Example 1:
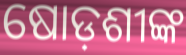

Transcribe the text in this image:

ଷୋଡ଼ଶୀଙ୍କ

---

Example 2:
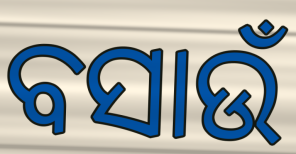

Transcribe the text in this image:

ବସାଉଁ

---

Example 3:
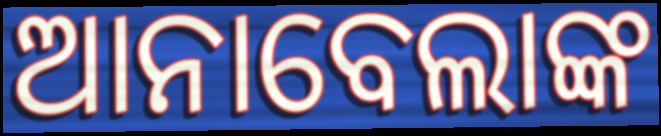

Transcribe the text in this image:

ଆନାବେଲାଙ୍କ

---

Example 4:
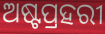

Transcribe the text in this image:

ଅଷ୍ଟପ୍ରହରୀ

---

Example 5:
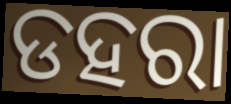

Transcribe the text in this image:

ଡହରା